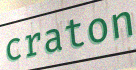
craton